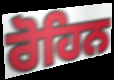
ਰੋਹਿਨ